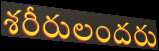
శరీరులందరు